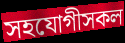
সহযোগীসকল